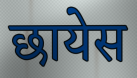
छायेस